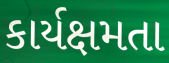
કાર્યક્ષમતા